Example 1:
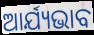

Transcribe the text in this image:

ଆର୍ଯ୍ୟଭାବ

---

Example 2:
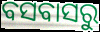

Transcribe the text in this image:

ବସବାସରୁ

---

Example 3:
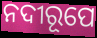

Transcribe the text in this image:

ନଦୀରୂପେ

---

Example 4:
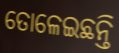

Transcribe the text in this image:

ତୋଳେଇଛନ୍ତି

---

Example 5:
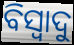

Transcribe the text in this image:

ବିସ୍ୱାଦୁ